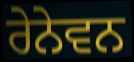
ਰੇਨੇਵਨ